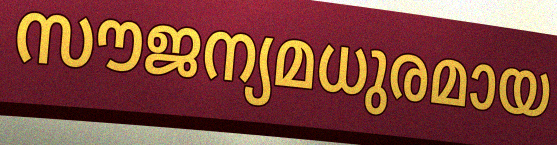
സൗജന്യമധുരമായ